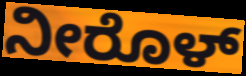
ನೀರೊಳ್